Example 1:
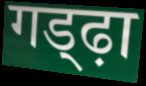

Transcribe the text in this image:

गड्ढ़ा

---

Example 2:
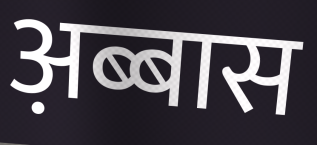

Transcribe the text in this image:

अ़ब्बास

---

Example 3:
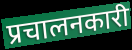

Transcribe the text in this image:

प्रचालनकारी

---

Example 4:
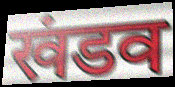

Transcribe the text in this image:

खंडव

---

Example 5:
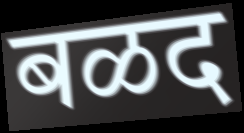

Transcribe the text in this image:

बळद